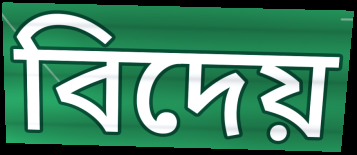
বিদেয়